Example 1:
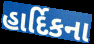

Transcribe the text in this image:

હાર્દિકના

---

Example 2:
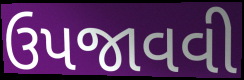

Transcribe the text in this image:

ઉપજાવવી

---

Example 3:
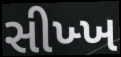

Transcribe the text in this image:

સીખ્ખ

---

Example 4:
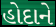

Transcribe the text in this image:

હોદાને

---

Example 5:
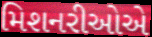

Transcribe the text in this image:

મિશનરીઓએ